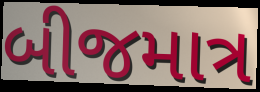
બીજમાત્ર